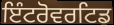
ਇੰਟਰੋਵਰਟਿਡ